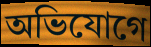
অভিযোগে